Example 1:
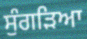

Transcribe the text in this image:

ਸੁੰਗੜਿਆ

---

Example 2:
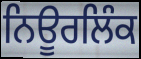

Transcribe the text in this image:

ਨਿਊਰਲਿੰਕ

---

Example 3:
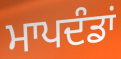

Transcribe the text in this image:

ਮਾਪਦੰਡਾਂ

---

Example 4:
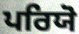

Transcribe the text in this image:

ਪਰਿਯੋ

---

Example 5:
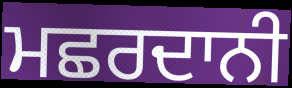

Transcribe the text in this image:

ਮਛਰਦਾਨੀ